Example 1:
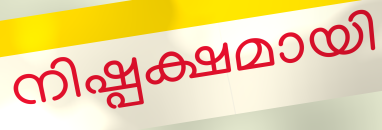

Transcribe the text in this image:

നിഷ്പക്ഷമായി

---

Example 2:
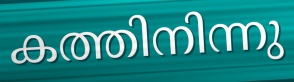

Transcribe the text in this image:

കത്തിനിന്നു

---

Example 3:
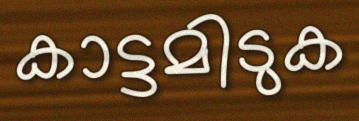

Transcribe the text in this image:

കാട്ടമിടുക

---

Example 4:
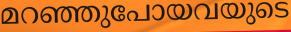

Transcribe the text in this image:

മറഞ്ഞുപോയവയുടെ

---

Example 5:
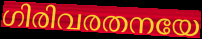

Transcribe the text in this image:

ഗിരിവരതനയേ